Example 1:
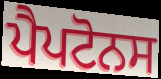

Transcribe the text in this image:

ਪੈਪਟੋਨਸ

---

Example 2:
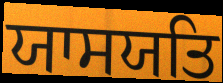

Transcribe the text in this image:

ਯਾਸਯਤਿ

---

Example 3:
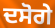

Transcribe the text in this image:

ਦਸੋਗੇ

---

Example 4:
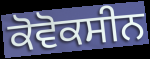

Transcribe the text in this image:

ਕੋਵੋਕਸੀਨ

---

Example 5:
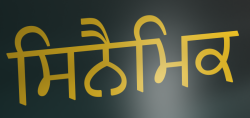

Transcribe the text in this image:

ਸਿਨੈਮਿਕ